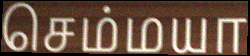
செம்மயா